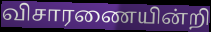
விசாரணையின்றி